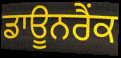
ਡਾਊਨਰੈਂਕ